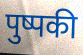
पुष्पकी